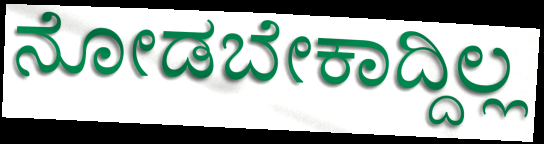
ನೋಡಬೇಕಾದ್ದಿಲ್ಲ